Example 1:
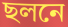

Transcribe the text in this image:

ছলনে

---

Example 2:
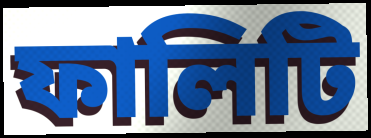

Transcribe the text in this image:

ফালিটি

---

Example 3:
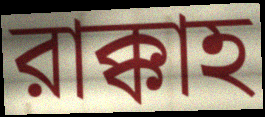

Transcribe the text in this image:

রাক্কাহ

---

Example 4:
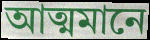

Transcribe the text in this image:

আত্মমানে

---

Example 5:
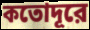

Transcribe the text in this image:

কতোদূরে